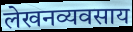
लेखनव्यवसाय